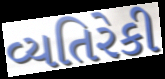
વ્યતિરેકી